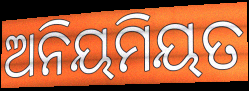
ଅନିୟମିୟତ